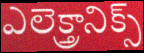
ఎలెక్త్రానిక్స్